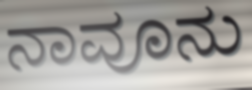
ನಾವೂನು